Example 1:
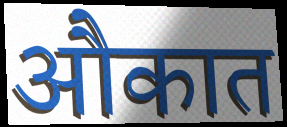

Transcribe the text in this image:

औकात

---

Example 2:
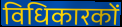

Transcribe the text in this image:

विधिकारकों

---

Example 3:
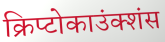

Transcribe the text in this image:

क्रिप्टोकाउंक्शंस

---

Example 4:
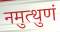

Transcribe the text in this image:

नमुत्थुणं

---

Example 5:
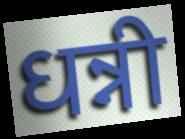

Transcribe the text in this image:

धन्नी